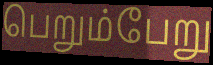
பெறும்பேறு